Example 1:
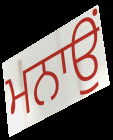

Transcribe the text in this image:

ਮਨਾਉਂ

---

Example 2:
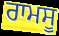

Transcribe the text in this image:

ਰਾਮਸੂ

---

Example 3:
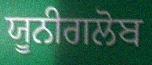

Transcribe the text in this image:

ਯੂਨੀਗਲੋਬ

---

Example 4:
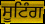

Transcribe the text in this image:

ਸੂਟਿੰਗ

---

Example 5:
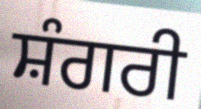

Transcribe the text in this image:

ਸ਼ੰਗਰੀ